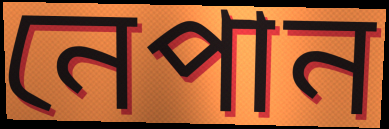
নেপান